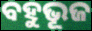
ବହୁଭୂଜ